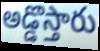
అడ్డొస్తారు